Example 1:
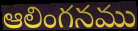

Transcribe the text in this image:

ఆలింగనము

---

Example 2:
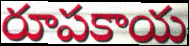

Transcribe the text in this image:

రూపకాయ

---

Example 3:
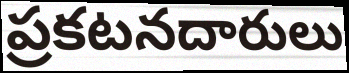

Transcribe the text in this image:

ప్రకటనదారులు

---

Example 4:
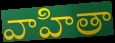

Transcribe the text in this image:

వాహితా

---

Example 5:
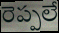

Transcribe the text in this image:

రెప్పలే